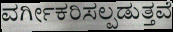
ವರ್ಗೀಕರಿಸಲ್ಪಡುತ್ತವೆ